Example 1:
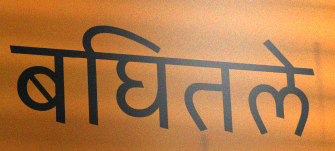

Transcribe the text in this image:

बघितले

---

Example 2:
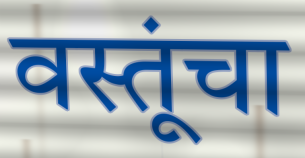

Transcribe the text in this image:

वस्तूंचा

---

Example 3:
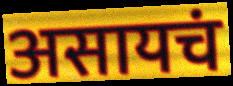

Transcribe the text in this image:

असायचं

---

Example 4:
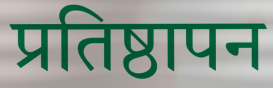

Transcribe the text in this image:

प्रतिष्ठापन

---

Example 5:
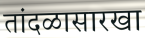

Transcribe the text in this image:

तांदळासारखा